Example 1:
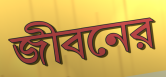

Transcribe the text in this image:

জীবনের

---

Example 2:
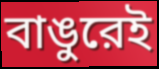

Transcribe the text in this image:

বাঙুরেই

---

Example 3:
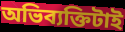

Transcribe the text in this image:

অভিব্যক্তিটাই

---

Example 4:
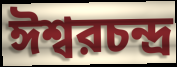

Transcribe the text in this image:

ঈশ্বরচন্দ্র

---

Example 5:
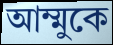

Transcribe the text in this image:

আম্মুকে